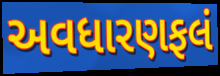
અવધારણફલં